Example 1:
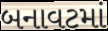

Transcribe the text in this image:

બનાવટમાં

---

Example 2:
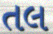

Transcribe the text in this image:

તલ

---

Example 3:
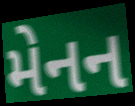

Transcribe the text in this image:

મેનન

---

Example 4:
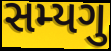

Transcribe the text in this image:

સમ્યગુ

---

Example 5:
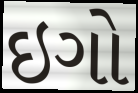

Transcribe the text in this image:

ઇગો